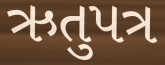
ઋતુપત્ર